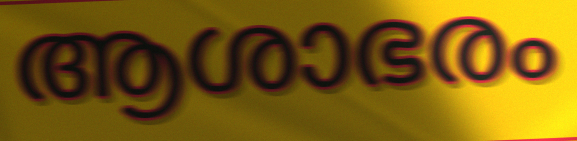
ആശാഭരം